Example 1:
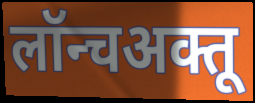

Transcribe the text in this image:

लॉन्चअक्तू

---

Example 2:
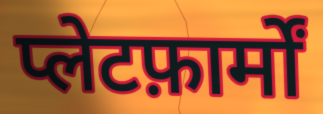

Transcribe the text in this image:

प्लेटफ़ार्मों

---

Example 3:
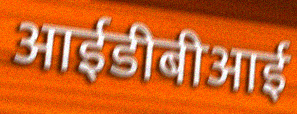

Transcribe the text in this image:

आईडीबीआई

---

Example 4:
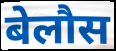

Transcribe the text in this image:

बेलौस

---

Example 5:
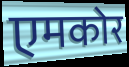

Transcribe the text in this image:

एमकोर